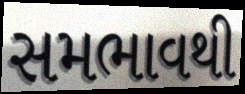
સમભાવથી